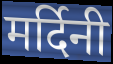
मर्दिनी